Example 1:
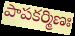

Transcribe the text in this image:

పాపకర్మిణః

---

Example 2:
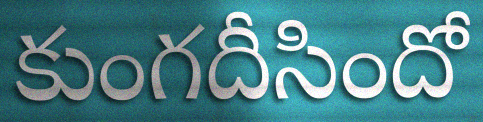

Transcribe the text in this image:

కుంగదీసిందో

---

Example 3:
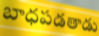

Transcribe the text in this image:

బాధపడతాడు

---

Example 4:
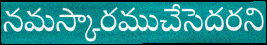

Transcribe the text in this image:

నమస్కారముచేసెదరని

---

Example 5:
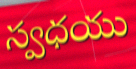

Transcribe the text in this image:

స్వధయు